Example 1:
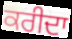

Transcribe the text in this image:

ਕਰੀਦਾ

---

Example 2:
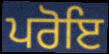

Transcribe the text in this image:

ਪਰੋਇ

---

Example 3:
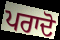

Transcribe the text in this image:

ਪਰਾਦੋ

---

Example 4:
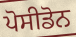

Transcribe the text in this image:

ਪੋਸੀਡੋਨ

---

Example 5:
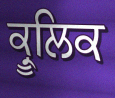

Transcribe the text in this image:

ਕ੍ਰੂਲਿਕ